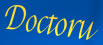
Doctoru